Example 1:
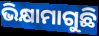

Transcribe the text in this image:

ଭିକ୍ଷାମାଗୁଛି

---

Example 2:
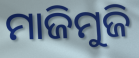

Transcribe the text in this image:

ମାଜିମୁଜି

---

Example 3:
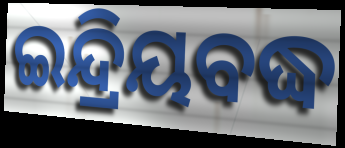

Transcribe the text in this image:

ଇନ୍ଦ୍ରିୟବଦ୍ଧ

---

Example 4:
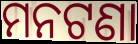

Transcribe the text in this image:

ମନଟଣା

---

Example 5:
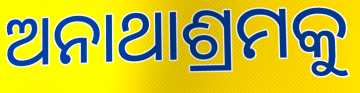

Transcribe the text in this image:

ଅନାଥାଶ୍ରମକୁ